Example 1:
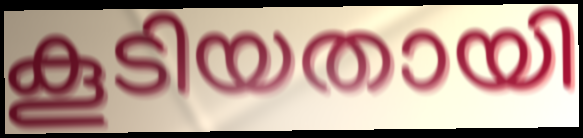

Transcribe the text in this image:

കൂടിയതായി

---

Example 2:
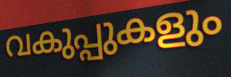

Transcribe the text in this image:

വകുപ്പുകളും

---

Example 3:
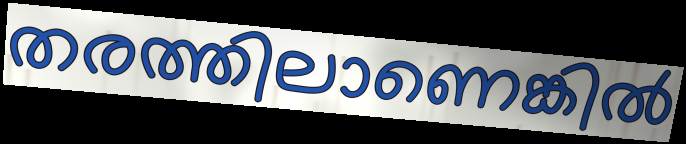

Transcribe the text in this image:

തരത്തിലാണെങ്കിൽ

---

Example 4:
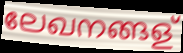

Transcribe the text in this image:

ലേഖനങ്ങള്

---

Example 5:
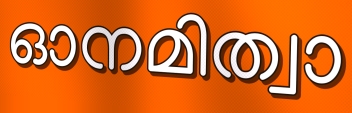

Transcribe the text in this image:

ഓനമിത്വാ